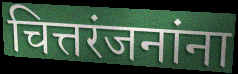
चित्तरंजनांना